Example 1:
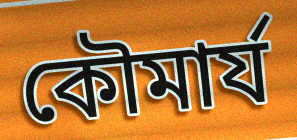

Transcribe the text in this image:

কৌমার্য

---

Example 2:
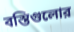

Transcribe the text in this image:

বস্তিগুলোর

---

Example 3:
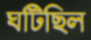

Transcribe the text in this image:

ঘটিছিল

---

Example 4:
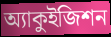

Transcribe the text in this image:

অ্যাকুইজিশন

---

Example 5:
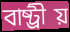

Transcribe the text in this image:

বাষ্ট্রীয়